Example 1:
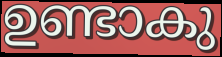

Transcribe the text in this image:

ഉണ്ടാകു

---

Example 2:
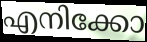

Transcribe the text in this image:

എനിക്കോ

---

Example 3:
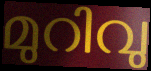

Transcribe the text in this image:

മുറിവു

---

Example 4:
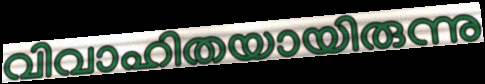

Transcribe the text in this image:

വിവാഹിതയായിരുന്നു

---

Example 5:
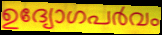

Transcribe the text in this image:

ഉദ്യോഗപർവം